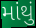
માંથું